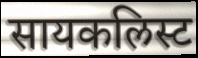
सायकलिस्ट